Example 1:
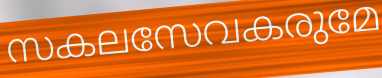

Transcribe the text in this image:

സകലസേവകരുമേ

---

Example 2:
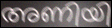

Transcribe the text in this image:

അണിയി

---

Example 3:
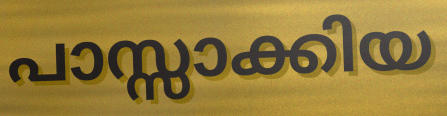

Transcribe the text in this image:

പാസ്സാക്കിയ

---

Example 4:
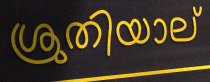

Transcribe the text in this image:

ശ്രുതിയാല്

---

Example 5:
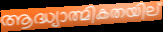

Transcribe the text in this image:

ആദ്ധ്യാത്മികതയില്